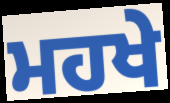
ਮਹਖੇ